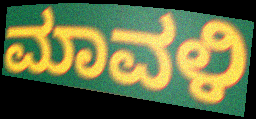
ಮಾವಳಿ